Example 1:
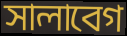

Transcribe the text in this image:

সালাবেগ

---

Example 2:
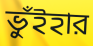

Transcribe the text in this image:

ভুঁইহার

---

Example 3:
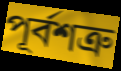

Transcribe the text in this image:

পূর্বশত্রু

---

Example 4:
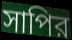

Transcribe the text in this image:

সাপির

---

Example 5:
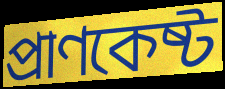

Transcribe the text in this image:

প্রাণকেষ্ট